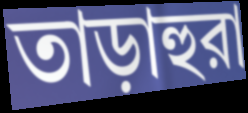
তাড়াহুরা